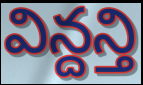
విన్దన్తి